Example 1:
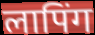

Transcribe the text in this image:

लापिंग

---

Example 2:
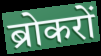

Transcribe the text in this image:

ब्रोकरों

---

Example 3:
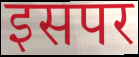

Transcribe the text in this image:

इसपर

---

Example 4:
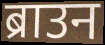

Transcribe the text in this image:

ब्राउन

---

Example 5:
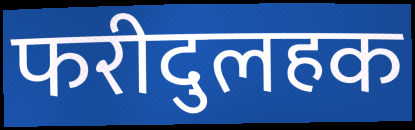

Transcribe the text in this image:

फरीदुलहक